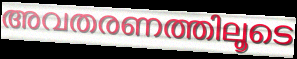
അവതരണത്തിലൂടെ